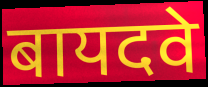
बायदवे